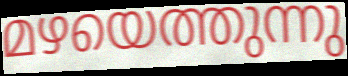
മഴയെത്തുന്നു